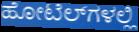
ಹೋಟೆಲ್‍ಗಳಲ್ಲಿ